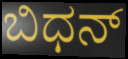
ಬಿಧನ್